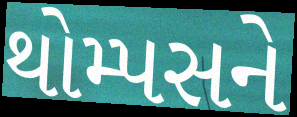
થોમ્પસને